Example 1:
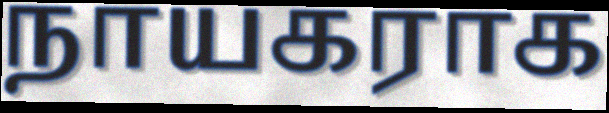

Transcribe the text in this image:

நாயகராக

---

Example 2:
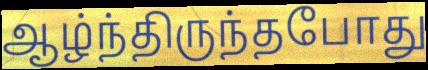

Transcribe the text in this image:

ஆழ்ந்திருந்தபோது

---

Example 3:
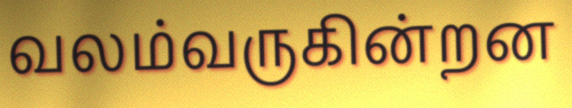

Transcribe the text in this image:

வலம்வருகின்றன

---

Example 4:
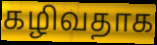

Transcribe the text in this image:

கழிவதாக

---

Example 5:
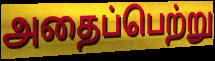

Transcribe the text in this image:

அதைப்பெற்று